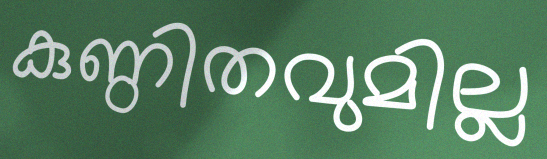
കുണ്ഠിതവുമില്ല